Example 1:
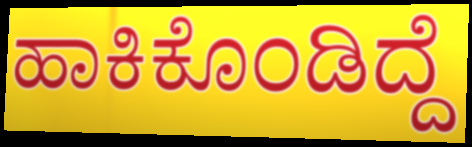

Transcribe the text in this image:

ಹಾಕಿಕೊಂಡಿದ್ದೆ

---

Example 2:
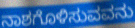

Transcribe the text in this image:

ನಾಶಗೊಳಿಸುವವನು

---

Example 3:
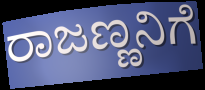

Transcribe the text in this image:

ರಾಜಣ್ಣನಿಗೆ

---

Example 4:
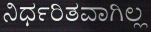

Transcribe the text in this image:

ನಿರ್ಧರಿತವಾಗಿಲ್ಲ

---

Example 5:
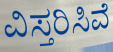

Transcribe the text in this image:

ವಿಸ್ತರಿಸಿವೆ